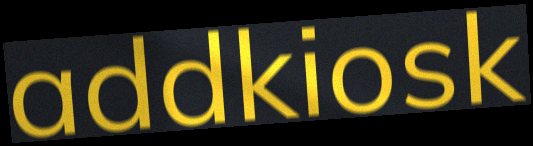
addkiosk